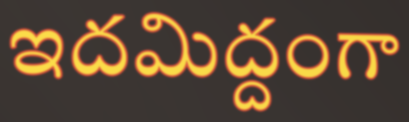
ఇదమిద్దంగా